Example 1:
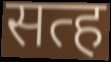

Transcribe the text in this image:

सत्ह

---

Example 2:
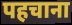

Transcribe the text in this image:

पहचाना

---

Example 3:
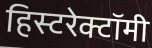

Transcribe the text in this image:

हिस्टरेक्टॉमी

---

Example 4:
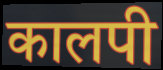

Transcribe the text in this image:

कालपी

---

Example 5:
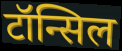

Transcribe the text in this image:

टॉन्सिल